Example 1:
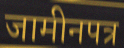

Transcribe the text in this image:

जामीनपत्र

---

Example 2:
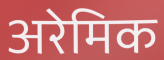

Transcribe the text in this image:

अरेमिक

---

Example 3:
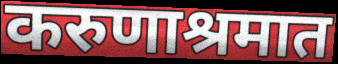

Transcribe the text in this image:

करुणाश्रमात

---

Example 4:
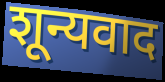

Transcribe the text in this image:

शून्यवाद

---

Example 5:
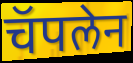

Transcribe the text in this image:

चॅपलेन